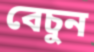
বেচুন